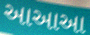
આઆઆ